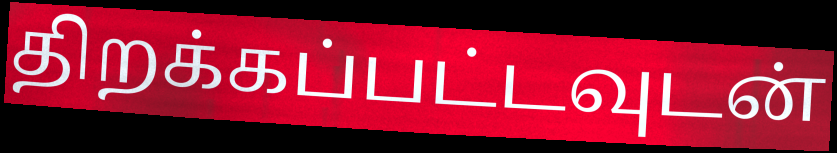
திறக்கப்பட்டவுடன்